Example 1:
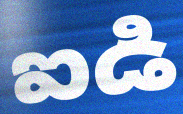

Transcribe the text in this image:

ఐడి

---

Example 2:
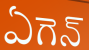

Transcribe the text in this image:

ఏగెన్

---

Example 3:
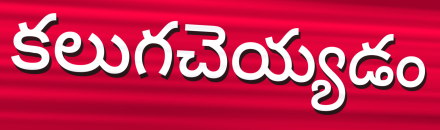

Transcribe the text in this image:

కలుగచెయ్యడం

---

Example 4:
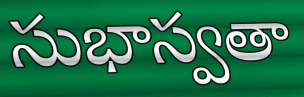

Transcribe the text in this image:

సుభాస్వతా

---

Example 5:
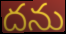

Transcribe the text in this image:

దను